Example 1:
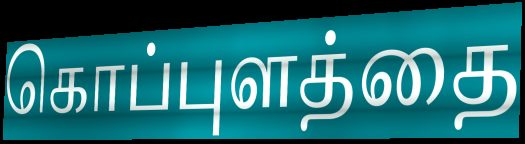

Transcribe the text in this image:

கொப்புளத்தை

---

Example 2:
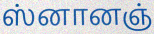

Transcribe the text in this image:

ஸ்னானஞ்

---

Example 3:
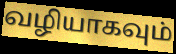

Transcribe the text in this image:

வழியாகவும்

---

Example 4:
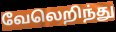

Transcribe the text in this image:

வேலெறிந்து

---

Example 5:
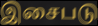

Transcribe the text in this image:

இசைபடு